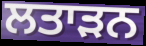
ਲਤਾੜਨ